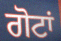
ਗੋਟਾਂ